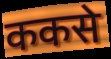
ककसे